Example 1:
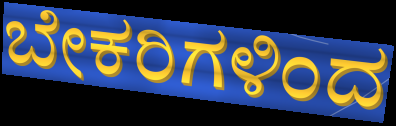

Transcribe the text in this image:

ಬೇಕರಿಗಳಿಂದ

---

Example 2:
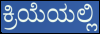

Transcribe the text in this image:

ಕ್ರಿಯೆಯಲ್ಲಿ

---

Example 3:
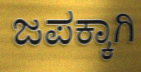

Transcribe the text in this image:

ಜಪಕ್ಕಾಗಿ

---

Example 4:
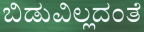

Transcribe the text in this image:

ಬಿಡುವಿಲ್ಲದಂತೆ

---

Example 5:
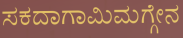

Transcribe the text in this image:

ಸಕದಾಗಾಮಿಮಗ್ಗೇನ